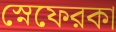
স্নেফেরকা